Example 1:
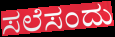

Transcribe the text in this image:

ಸಲೆಸಂದು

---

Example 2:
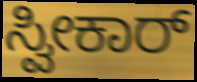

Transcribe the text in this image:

ಸ್ವೀಕಾರ್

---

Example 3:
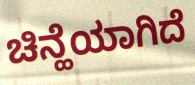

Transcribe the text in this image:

ಚಿನ್ಹೆಯಾಗಿದೆ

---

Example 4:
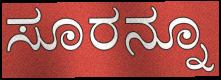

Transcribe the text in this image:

ಸೂರನ್ನೂ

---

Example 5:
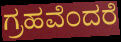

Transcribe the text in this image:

ಗ್ರಹವೆಂದರೆ